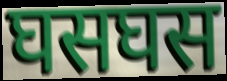
घसघस